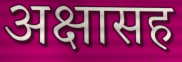
अक्षासह